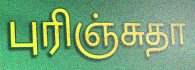
புரிஞ்சுதா